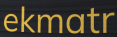
ekmatr